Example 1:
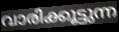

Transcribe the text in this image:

വാരിക്കൂട്ടുന്ന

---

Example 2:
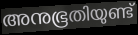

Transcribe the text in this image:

അനുഭൂതിയുണ്ട്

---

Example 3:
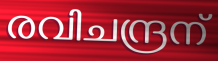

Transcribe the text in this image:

രവിചന്ദ്രന്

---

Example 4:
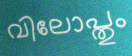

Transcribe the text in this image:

വിലോപ്തും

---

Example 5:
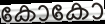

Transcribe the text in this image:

കോകോ